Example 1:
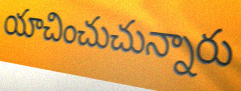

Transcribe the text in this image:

యాచించుచున్నారు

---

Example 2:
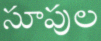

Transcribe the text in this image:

సూపుల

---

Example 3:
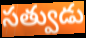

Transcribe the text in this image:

సత్వుడు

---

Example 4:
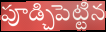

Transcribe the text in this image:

పూడ్చిపెట్టిన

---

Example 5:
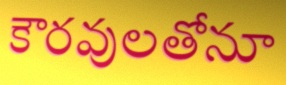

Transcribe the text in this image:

కౌరవులతోనూ